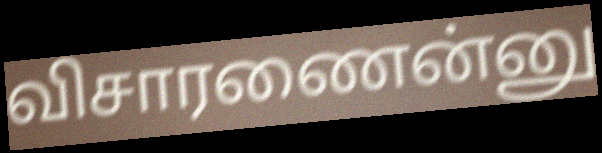
விசாரணைன்னு